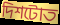
দিশটোত